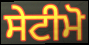
ਸੇਟੀਮੋ